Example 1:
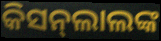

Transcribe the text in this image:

କିସନ୍‌ଲାଲଙ୍କ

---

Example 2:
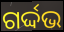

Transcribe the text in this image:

ଗର୍ଦ୍ଦଭ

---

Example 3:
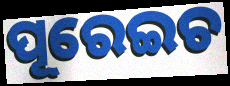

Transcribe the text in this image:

ପୂରେଇଚ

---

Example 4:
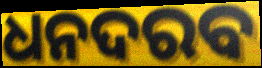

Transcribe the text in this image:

ଧନଦରବ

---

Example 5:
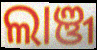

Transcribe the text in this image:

ଲାଞ୍ଜ